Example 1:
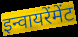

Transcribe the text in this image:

इन्वायरेंमेंट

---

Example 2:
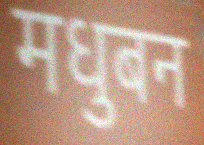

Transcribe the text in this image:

मधुबन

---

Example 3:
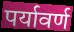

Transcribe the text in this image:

पर्यावर्ण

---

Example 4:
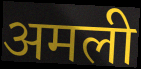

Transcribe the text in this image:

अमली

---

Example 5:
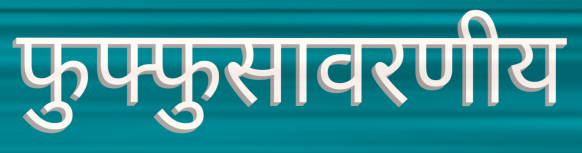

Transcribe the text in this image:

फुफ्फुसावरणीय